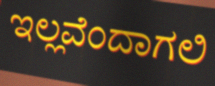
ಇಲ್ಲವೆಂದಾಗಲಿ